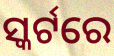
ସ୍କର୍ଟରେ